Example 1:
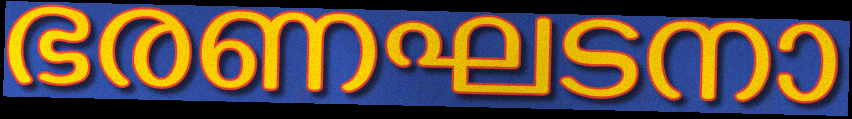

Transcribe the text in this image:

ഭരണഘടനാ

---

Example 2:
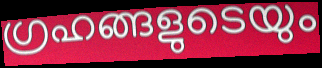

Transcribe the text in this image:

ഗ്രഹങ്ങളുടെയും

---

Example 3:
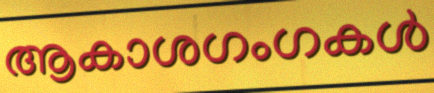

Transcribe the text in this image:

ആകാശഗംഗകൾ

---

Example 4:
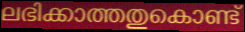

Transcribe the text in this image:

ലഭിക്കാത്തതുകൊണ്ട്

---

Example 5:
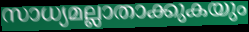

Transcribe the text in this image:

സാധ്യമല്ലാതാക്കുകയും